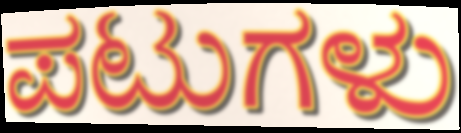
ಪಟುಗಳು